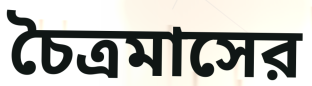
চৈত্রমাসের